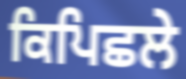
ਕਿਪਿਛਲੇ